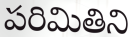
పరిమితిని